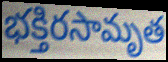
భక్తిరసామృత